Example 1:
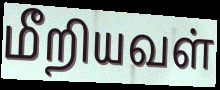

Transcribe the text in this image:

மீறியவள்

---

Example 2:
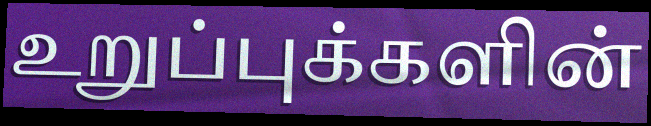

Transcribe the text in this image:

உறுப்புக்களின்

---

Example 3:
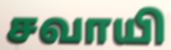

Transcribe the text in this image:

சவாயி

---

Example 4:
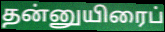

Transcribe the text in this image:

தன்னுயிரைப்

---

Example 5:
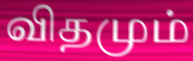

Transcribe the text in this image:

விதமும்